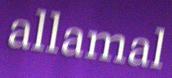
allamal